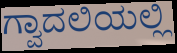
ಗ್ವಾದಲಿಯಲ್ಲಿ